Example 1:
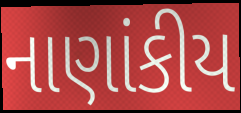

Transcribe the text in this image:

નાણાંકીય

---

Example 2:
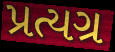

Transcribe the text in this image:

પ્રત્યગ્ર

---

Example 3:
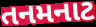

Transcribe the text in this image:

તનમનાટ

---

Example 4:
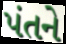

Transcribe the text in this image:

પંતને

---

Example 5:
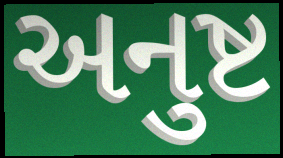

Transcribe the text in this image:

અનુષ્ટ